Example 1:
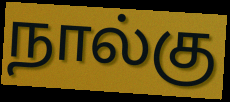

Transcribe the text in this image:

நால்கு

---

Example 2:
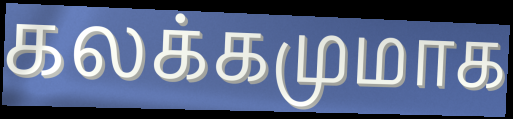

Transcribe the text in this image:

கலக்கமுமாக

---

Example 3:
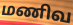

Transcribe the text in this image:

மணிவ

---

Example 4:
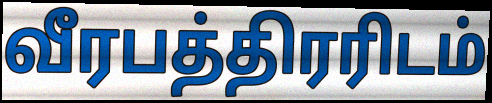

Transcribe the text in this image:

வீரபத்திரரிடம்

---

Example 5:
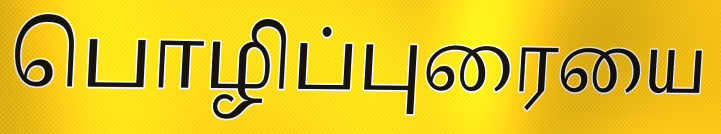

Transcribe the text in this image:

பொழிப்புரையை